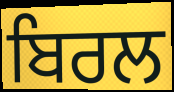
ਬਿਰਲ